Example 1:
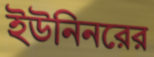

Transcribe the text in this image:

ইউনিনরের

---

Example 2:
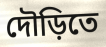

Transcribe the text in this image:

দৌড়িতে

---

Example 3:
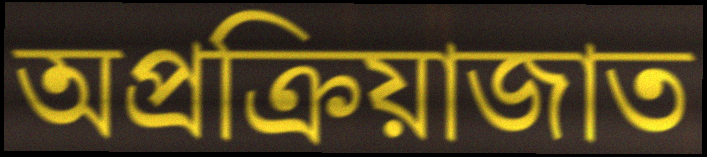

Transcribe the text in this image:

অপ্রক্রিয়াজাত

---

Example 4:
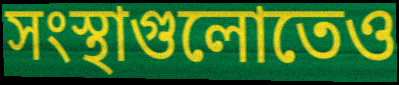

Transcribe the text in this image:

সংস্থাগুলোতেও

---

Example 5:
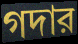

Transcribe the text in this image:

গদার